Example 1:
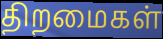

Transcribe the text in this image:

திறமைகள்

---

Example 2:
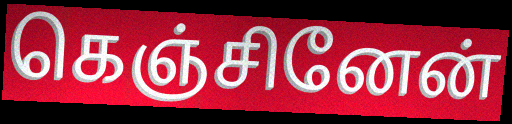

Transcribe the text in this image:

கெஞ்சினேன்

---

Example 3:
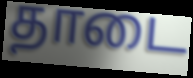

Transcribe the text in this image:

தாடை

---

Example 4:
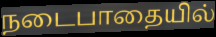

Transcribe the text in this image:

நடைபாதையில்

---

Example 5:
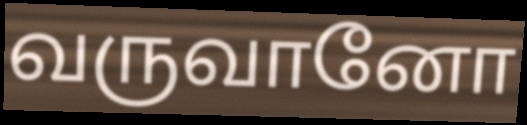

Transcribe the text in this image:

வருவானோ